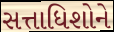
સત્તાધિશોને